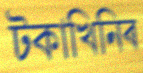
টকাখিনিৰ